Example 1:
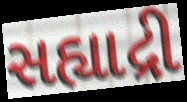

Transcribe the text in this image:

સહ્યાદ્રી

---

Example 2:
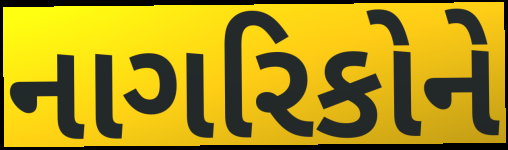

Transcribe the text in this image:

નાગરિકોને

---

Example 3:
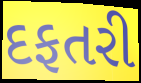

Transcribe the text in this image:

દફતરી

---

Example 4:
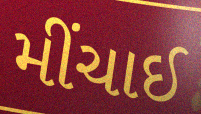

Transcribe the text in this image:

મીંચાઈ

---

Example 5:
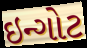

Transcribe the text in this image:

ઇન્ગોટ